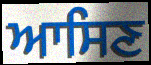
ਆਸਿਣ